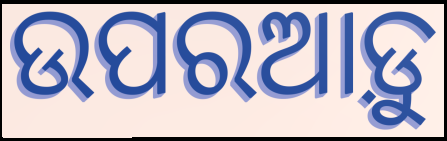
ଉପରଆଡ଼ୁ